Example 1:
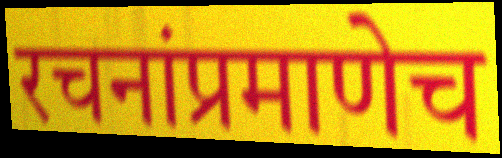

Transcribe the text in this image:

रचनांप्रमाणेच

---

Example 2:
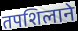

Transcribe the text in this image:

तपशिलाने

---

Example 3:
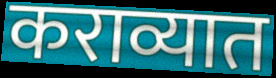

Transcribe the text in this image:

कराव्यात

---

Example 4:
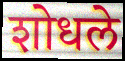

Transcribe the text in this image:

शोधले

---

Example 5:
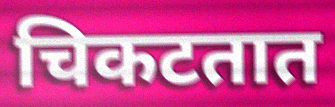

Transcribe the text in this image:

चिकटतात